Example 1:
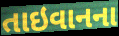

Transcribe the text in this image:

તાઇવાનના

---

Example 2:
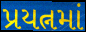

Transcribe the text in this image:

પ્રયત્નમાં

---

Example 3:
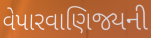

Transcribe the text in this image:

વેપારવાણિજ્યની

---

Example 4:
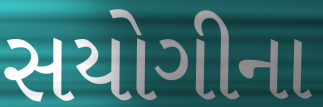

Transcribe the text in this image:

સયોગીના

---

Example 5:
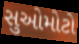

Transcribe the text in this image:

સુઓમોટો